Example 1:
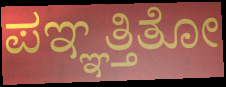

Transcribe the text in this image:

ಪಞ್ಞತ್ತಿತೋ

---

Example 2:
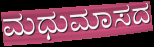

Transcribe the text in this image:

ಮಧುಮಾಸದ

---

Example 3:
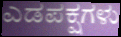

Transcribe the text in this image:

ಎಡಪಕ್ಷಗಳು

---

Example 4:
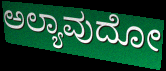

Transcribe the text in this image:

ಅಲ್ಯಾವುದೋ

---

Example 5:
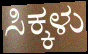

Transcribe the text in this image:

ಸಿಕ್ಕಳು